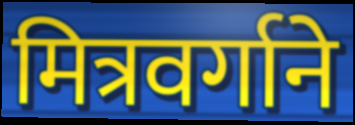
मित्रवर्गाने